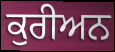
ਕੁਰੀਅਨ